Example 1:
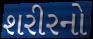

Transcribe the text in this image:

શરીરનો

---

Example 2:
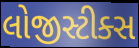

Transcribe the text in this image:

લોજીસ્ટીક્સ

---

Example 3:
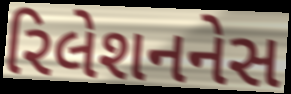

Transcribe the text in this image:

રિલેશનનેસ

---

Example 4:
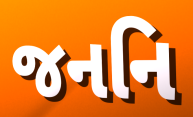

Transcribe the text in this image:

જનનિ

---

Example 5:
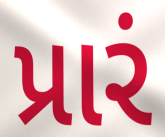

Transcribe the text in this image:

પ્રારં